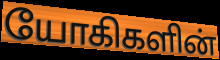
யோகிகளின்